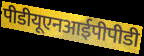
पीडीयूएनआईपीपीडी